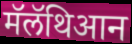
मॅलॅथिआन